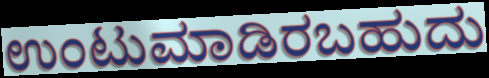
ಉಂಟುಮಾಡಿರಬಹುದು